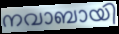
നവാബായി